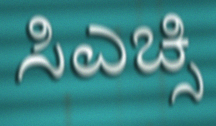
ಸಿಎಚ್ಸಿ